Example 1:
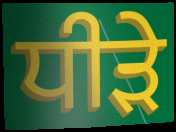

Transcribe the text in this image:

ਧੀੜੇ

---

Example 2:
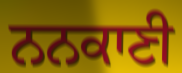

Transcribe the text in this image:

ਨਨਕਾਣੀ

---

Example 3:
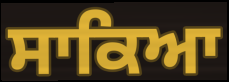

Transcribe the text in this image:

ਸਾਕਿਆ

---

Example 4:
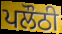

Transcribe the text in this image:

ਪਲੌਠੀ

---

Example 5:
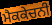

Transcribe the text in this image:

ਮੈਕਕੇਚਨੀ